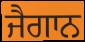
ਜੈਗਾਨ